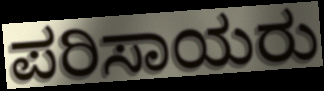
ಪರಿಸಾಯರು